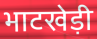
भाटखेड़ी